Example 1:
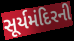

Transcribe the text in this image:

સૂર્યમંદિરની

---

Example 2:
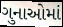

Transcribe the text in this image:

ગુનાઓમાં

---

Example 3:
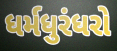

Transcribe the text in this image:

ધર્મધુરંધરો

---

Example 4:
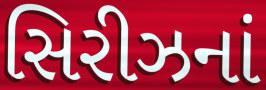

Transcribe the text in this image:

સિરીઝનાં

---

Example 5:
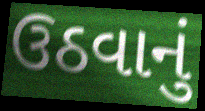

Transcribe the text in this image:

ઉઠવાનું